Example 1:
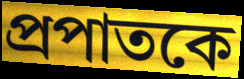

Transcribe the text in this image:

প্রপাতকে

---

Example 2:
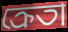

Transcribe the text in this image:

ক্রেতা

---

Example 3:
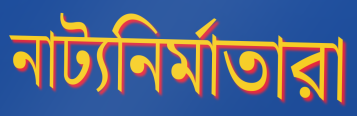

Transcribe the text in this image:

নাট্যনির্মাতারা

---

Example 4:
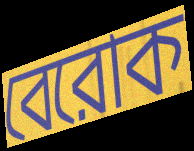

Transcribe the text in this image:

বেরোক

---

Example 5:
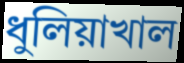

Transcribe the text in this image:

ধুলিয়াখাল